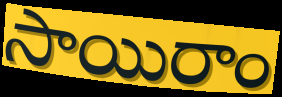
సాయిరాం